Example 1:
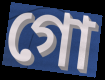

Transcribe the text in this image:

গো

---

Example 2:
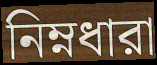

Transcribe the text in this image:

নিম্নধারা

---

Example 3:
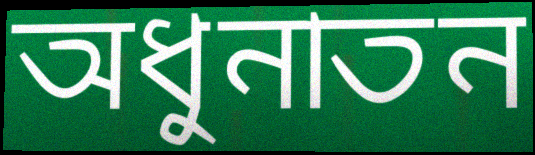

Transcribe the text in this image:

অধুনাতন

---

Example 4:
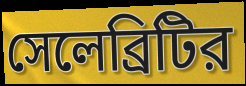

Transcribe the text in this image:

সেলেব্রিটির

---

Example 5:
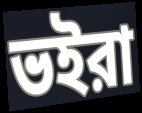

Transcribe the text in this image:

ভইরা